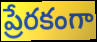
ప్రేరకంగా